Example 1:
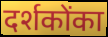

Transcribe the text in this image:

दर्शकोंका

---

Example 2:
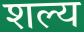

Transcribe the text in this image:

शल्य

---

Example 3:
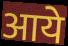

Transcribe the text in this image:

आये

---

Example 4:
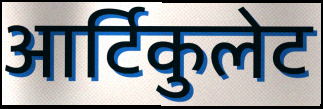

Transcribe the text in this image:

आर्टिकुलेट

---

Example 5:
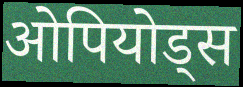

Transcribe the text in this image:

ओपियोड्स